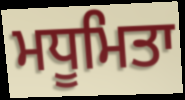
ਮਧੂਮਿਤਾ